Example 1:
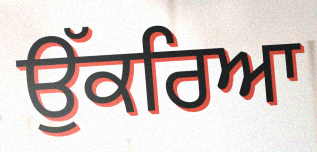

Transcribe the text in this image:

ਉੱਕਰਿਆ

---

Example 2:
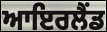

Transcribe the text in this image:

ਆਇਰਲੈੰਡ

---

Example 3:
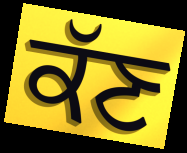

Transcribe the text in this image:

ਕੱਣ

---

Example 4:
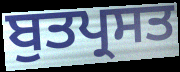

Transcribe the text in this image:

ਬੁਤਪ੍ਰਸਤ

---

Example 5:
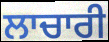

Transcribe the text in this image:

ਲਾਚਾਰੀ